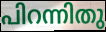
പിറന്നിതു